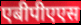
एबीपीएएस